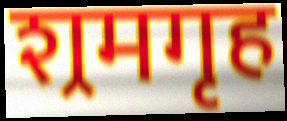
श्रमगृह